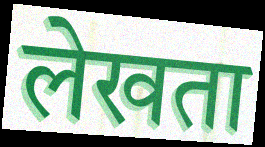
लेखता